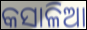
କସାଳିଆ